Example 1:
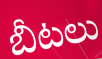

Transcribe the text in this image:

బీటలు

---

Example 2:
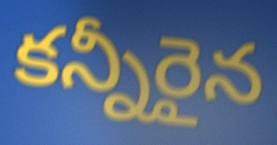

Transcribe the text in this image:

కన్నీరైన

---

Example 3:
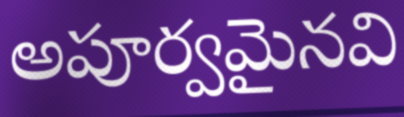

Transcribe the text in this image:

అపూర్వమైనవి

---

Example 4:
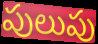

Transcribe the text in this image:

పులుపు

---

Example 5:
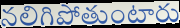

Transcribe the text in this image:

నలిగిపోతుంటారు